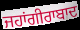
ਜਹਾਂਗੀਰਾਬਾਦ